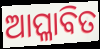
ଆପ୍ଳାବିତ